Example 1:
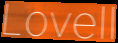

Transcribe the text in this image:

Lovell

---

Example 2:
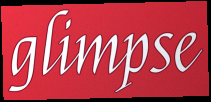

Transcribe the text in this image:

glimpse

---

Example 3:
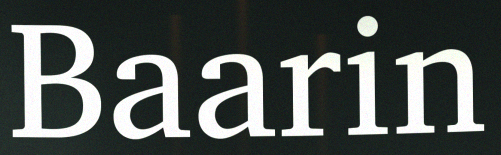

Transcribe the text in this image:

Baarin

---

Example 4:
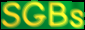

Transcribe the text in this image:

SGBs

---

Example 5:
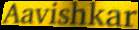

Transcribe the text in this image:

Aavishkar